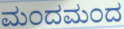
ಮಂದಮಂದ